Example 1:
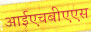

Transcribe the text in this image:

आईएचबीएएस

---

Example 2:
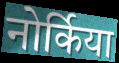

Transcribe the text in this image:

नोर्किया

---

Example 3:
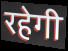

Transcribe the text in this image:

रहेगी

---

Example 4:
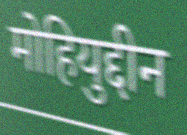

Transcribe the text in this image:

मोहियुद्दीन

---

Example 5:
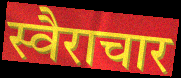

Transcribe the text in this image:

स्वैराचार